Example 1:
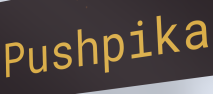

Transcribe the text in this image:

Pushpika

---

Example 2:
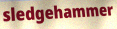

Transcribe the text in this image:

sledgehammer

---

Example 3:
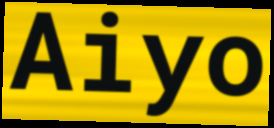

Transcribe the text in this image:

Aiyo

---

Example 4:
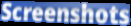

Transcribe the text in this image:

Screenshots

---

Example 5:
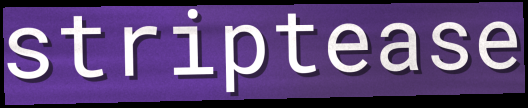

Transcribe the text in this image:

striptease